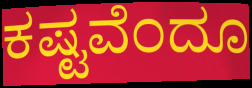
ಕಷ್ಟವೆಂದೂ